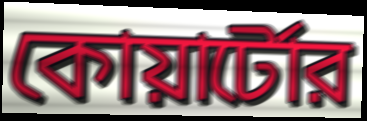
কোয়ার্টোর